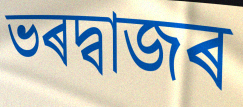
ভৰদ্বাজৰ